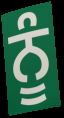
ਨੂੰ